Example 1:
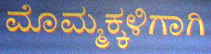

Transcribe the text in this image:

ಮೊಮ್ಮಕ್ಕಳಿಗಾಗಿ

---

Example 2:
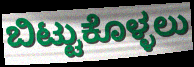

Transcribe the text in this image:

ಬಿಟ್ಟುಕೊಳ್ಳಲು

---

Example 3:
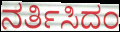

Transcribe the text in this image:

ನರ್ತಿಸಿದಂ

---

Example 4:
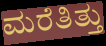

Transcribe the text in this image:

ಮರೆತಿತ್ತು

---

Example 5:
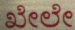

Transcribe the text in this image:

ಖೇಲೇ